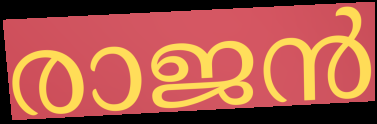
രാജൻ